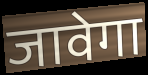
जावेगा